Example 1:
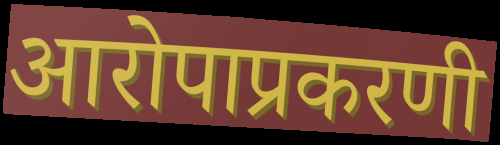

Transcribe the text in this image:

आरोपाप्रकरणी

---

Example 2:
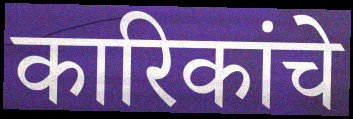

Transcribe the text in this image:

कारिकांचे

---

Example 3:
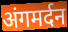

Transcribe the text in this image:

अंगमर्दन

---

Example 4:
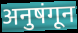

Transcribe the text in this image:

अनुषंगून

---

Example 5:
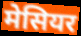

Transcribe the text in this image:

मेसियर